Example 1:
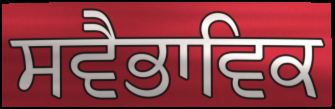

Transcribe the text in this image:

ਸਵੈਭਾਵਿਕ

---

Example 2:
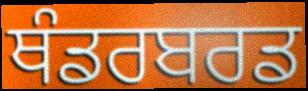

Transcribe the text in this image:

ਥੰਡਰਬਰਡ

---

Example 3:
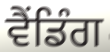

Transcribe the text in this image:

ਵੈਂਡਿੰਗ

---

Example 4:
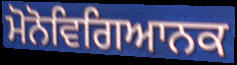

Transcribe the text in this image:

ਮੋਨੋਵਿਗਿਆਨਕ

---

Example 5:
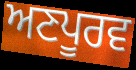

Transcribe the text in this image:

ਅਣਪੂਰਵ